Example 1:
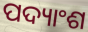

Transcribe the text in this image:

ପଦ୍ୟାଂଶ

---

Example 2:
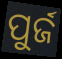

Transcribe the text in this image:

ପୁର୍ଜ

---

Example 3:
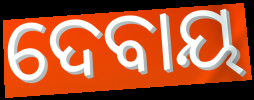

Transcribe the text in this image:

ଦେବାୟ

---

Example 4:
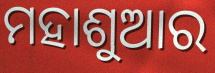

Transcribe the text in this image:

ମହାଶୁଆର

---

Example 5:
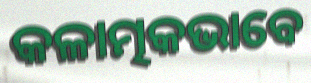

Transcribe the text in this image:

କଳାତ୍ମକଭାବେ